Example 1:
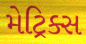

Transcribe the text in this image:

મેટ્રિક્સ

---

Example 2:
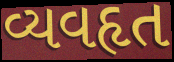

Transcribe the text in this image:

વ્યવહૃત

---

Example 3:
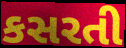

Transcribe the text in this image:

કસરતી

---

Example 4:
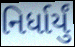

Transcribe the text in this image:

નિર્ધાર્યું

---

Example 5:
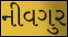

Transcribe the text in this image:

નીવગુર